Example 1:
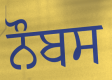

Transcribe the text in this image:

ਨੌਬਸ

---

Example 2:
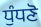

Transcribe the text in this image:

ਧੁੰਧਣੋ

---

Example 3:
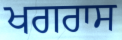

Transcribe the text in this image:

ਖਗਰਾਸ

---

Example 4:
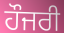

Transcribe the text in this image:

ਹੌਜਰੀ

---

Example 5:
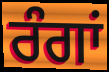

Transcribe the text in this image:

ਰੰਗਾਂ